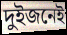
দুইজনেই